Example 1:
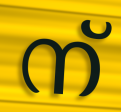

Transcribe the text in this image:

ന്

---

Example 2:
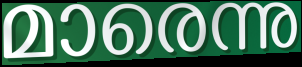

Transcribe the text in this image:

മാരെന്നു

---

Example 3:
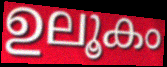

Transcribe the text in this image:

ഉലൂകം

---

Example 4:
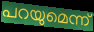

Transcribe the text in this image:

പറയുമെന്ന്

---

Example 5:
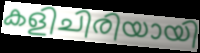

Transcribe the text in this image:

കളിചിരിയായി